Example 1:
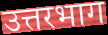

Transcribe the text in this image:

उत्तरभाग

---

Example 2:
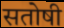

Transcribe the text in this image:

सतोषी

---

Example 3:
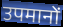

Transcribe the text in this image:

उपमानों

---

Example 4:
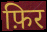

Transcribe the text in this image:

फ़िर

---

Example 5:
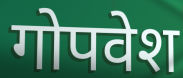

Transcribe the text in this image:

गोपवेश